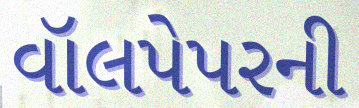
વૉલપેપરની